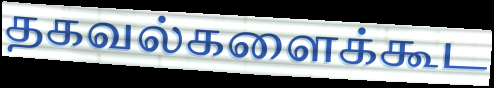
தகவல்களைக்கூட